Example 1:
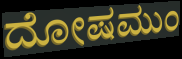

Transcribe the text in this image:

ದೋಷಮುಂ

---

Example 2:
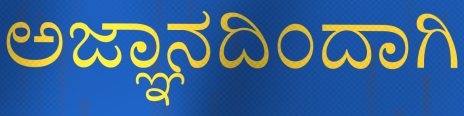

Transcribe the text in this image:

ಅಜ್ಞಾನದಿಂದಾಗಿ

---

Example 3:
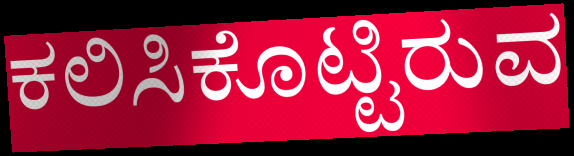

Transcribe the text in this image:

ಕಲಿಸಿಕೊಟ್ಟಿರುವ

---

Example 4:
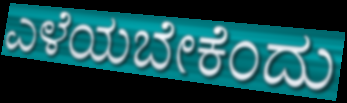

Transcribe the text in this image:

ಎಳೆಯಬೇಕೆಂದು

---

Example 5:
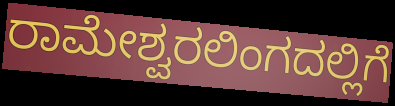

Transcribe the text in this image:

ರಾಮೇಶ್ವರಲಿಂಗದಲ್ಲಿಗೆ